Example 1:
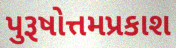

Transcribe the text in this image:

પુરૂષોત્તમપ્રકાશ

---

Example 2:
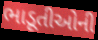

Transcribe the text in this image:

ભાડૂતીઓની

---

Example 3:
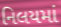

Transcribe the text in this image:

નિલયમાં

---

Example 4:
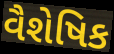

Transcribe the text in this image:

વૈશેષિક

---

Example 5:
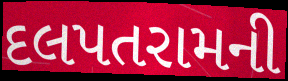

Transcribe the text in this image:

દલપતરામની